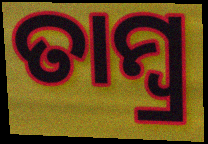
ତାମ୍ବ୍ର